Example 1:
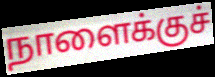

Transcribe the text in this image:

நாளைக்குச்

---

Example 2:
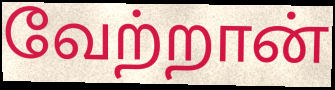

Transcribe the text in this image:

வேற்றான்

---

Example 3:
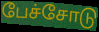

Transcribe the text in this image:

பேச்சோடு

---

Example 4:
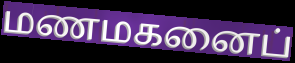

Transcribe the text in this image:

மணமகனைப்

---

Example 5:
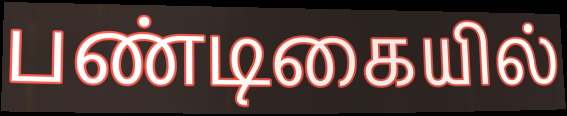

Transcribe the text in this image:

பண்டிகையில்